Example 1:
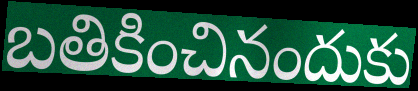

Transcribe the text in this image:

బతికించినందుకు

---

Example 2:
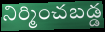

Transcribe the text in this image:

నిర్మించబడ్డ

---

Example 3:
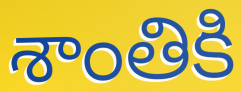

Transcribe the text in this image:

శాంతికి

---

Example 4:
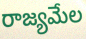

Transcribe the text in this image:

రాజ్యమేల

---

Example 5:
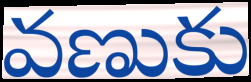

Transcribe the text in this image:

వణుకు